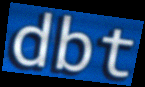
dbt